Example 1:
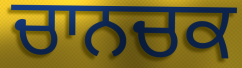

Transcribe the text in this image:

ਚਾਨਚਕ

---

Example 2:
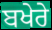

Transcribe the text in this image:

ਬਖੇਰੇ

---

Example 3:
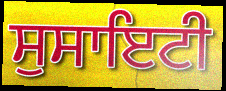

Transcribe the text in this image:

ਸੁਸਾਇਟੀ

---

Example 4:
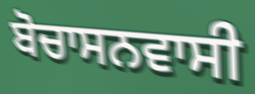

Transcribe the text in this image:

ਬੋਚਾਸਨਵਾਸੀ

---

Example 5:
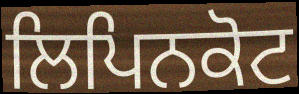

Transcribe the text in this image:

ਲਿਪਿਨਕੋਟ